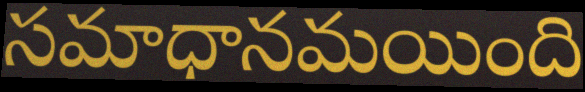
సమాధానమయింది